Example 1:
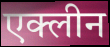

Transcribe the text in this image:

एक्लीन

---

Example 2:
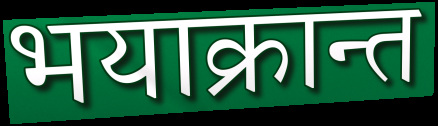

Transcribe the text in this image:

भयाक्रान्त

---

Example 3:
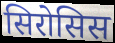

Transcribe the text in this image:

सिरोसिस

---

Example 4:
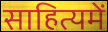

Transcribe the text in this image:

साहित्यमें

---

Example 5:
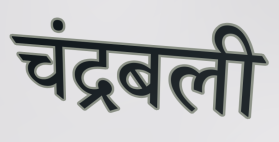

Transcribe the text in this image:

चंद्रबली